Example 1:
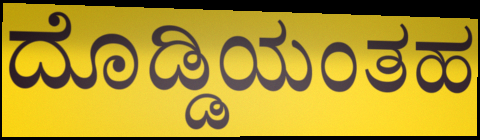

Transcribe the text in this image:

ದೊಡ್ಡಿಯಂತಹ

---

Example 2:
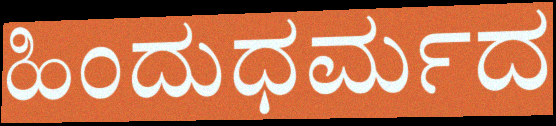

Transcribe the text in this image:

ಹಿಂದುಧರ್ಮದ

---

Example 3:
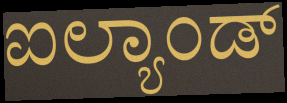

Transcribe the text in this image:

ಐಲ್ಯಾಂಡ್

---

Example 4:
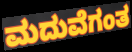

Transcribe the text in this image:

ಮದುವೆಗಂತ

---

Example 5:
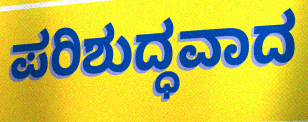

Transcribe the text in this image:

ಪರಿಶುದ್ಧವಾದ